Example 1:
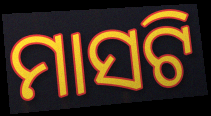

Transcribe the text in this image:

ମାସଟି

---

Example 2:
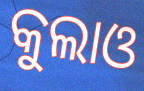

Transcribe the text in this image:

କୁଲାଓ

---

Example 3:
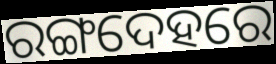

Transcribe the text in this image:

ରଙ୍ଗଦେହରେ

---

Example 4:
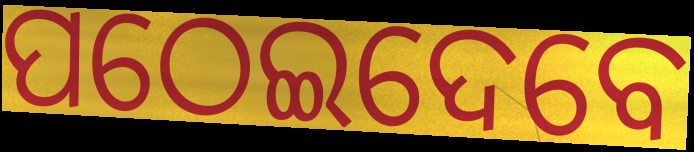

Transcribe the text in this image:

ପଠେଇଦେବେ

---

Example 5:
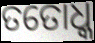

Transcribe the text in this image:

ତତୋଧ୍କ